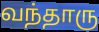
வந்தாரு